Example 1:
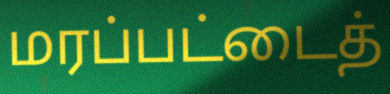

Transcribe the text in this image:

மரப்பட்டைத்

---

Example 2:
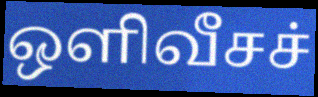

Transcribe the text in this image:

ஒளிவீசச்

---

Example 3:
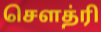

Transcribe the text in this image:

சௌத்ரி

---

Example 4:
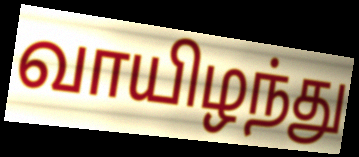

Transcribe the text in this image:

வாயிழந்து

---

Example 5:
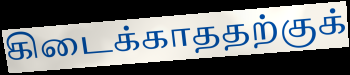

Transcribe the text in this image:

கிடைக்காததற்குக்